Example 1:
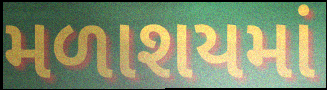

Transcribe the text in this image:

મળાશયમાં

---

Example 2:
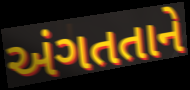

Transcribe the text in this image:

અંગતતાને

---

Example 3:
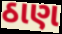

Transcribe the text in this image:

ઠાણ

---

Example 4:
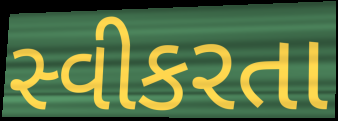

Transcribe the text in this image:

સ્વીકરતા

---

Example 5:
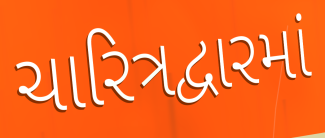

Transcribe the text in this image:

ચારિત્રદ્વારમાં